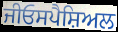
ਜੀਓਸਪੈਸ਼ਿਅਲ